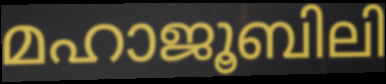
മഹാജൂബിലി